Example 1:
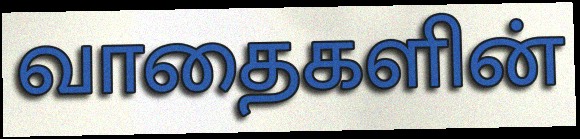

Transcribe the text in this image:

வாதைகளின்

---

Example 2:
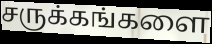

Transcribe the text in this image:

சருக்கங்களை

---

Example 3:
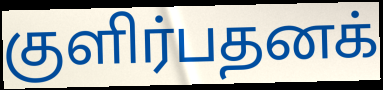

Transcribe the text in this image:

குளிர்பதனக்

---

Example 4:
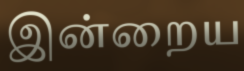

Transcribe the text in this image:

இன்றைய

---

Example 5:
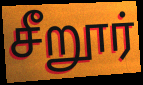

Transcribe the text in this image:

சீறூர்